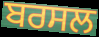
ਬਰਸਲ